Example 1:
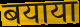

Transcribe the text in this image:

बयाया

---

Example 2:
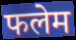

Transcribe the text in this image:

फलेम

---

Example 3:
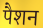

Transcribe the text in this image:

पैशन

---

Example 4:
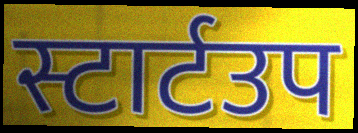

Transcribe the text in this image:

स्टार्टउप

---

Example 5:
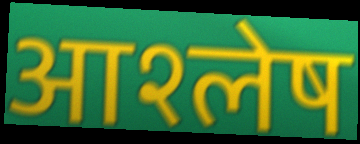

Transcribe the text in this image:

आश्लेष